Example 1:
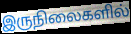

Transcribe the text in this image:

இருநிலைகளில்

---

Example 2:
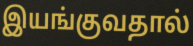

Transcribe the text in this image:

இயங்குவதால்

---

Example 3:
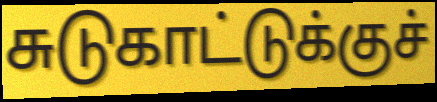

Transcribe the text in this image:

சுடுகாட்டுக்குச்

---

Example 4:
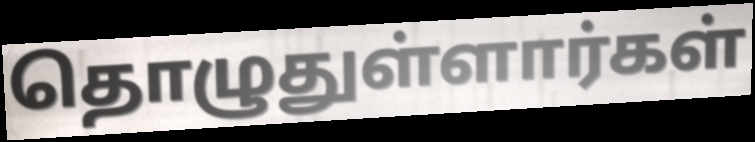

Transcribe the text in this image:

தொழுதுள்ளார்கள்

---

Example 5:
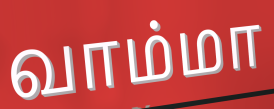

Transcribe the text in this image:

வாம்மா